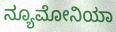
ನ್ಯೂಮೋನಿಯಾ